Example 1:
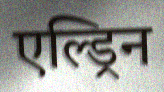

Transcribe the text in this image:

एल्ड्रिन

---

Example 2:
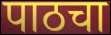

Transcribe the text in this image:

पाठचा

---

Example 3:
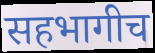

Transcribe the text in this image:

सहभागीच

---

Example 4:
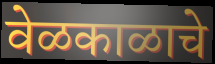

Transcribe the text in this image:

वेळकाळाचे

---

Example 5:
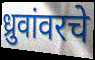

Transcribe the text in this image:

ध्रुवांवरचे